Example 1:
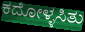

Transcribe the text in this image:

ಕದೋಳ್ಳಸಿತು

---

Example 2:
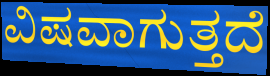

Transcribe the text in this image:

ವಿಷವಾಗುತ್ತದೆ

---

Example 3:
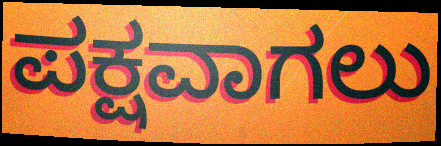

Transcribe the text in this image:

ಪಕ್ಷವಾಗಲು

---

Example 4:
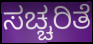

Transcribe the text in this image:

ಸಚ್ಚರಿತೆ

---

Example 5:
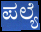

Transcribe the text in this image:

ಪಲ್ಯೆ